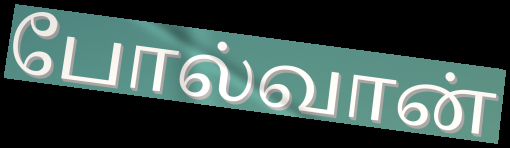
போல்வான்